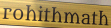
rohithmath